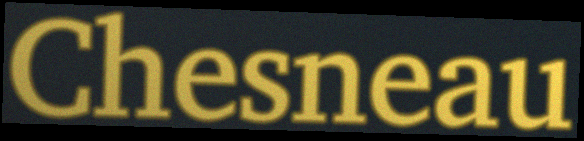
Chesneau